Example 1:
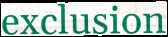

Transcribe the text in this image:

exclusion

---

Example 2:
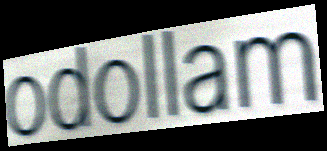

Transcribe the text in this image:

odollam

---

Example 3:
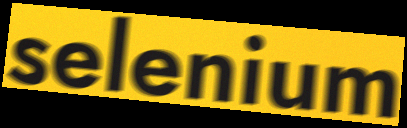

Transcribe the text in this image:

selenium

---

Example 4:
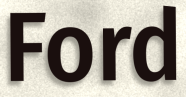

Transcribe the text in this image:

Ford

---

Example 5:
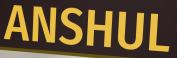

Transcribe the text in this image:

ANSHUL